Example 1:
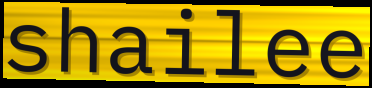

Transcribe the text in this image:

shailee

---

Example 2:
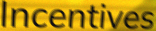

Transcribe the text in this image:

Incentives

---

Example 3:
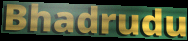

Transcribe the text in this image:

Bhadrudu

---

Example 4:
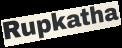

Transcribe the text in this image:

Rupkatha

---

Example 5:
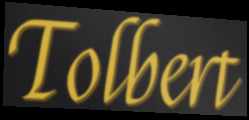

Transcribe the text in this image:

Tolbert